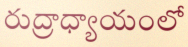
రుద్రాధ్యాయంలో